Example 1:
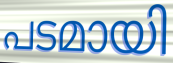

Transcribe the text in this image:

പടമായി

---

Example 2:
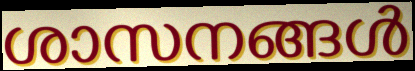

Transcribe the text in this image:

ശാസനങ്ങൾ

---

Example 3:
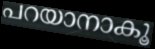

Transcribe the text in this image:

പറയാനാകൂ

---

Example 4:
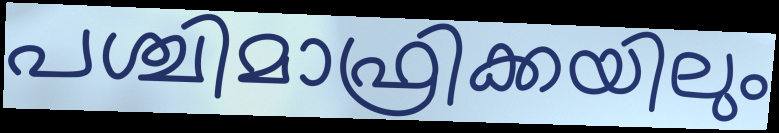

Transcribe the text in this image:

പശ്ചിമാഫ്രിക്കയിലും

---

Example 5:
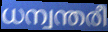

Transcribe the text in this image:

ധന്വന്തരീ